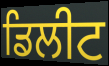
ਡਿਲੀਟ